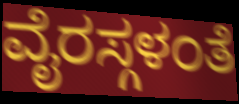
ವೈರಸ್ಗಳಂತೆ